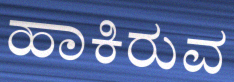
ಹಾಕಿರುವ